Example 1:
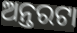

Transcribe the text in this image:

ଅନ୍ତରଟା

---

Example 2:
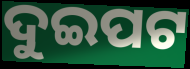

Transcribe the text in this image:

ଦୁଇପଟ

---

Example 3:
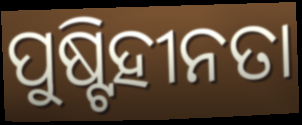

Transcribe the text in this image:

ପୁଷ୍ଟିହୀନତା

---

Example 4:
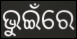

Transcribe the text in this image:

ଭୁଇଁରେ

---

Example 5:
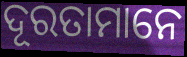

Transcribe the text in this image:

ଦୂରତାମାନେ